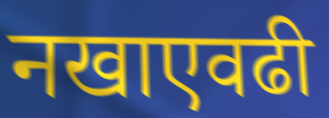
नखाएवढी